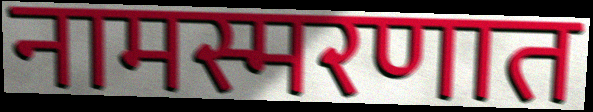
नामस्मरणात